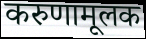
करुणामूलक